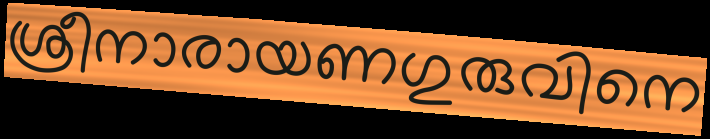
ശ്രീനാരായണഗുരുവിനെ